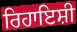
ਰਿਹਾਇਸ਼ੀ